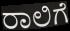
ರಾಲಿಗೆ